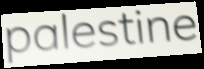
palestine